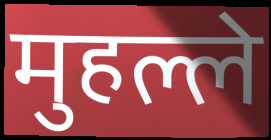
मुहल्ले